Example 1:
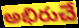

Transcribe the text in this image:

అభిరుచే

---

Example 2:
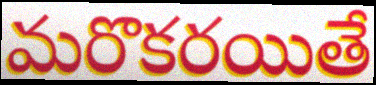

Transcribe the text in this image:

మరొకరయితే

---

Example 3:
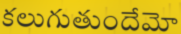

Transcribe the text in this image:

కలుగుతుందేమో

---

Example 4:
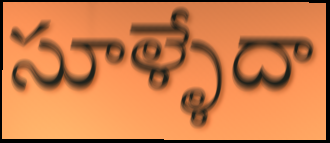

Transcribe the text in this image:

సూళ్ళేదా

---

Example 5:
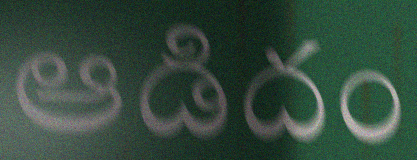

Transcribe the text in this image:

ఆడిదం